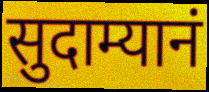
सुदाम्यानं